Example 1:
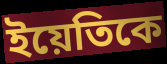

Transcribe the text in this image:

ইয়েতিকে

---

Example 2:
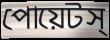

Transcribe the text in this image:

পোয়েটস্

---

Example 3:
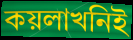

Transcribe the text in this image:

কয়লাখনিই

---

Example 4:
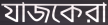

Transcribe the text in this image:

যাজকেরা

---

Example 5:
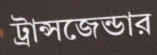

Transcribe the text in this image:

ট্রান্সজেন্ডার